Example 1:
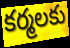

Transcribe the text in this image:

కర్మలకు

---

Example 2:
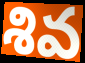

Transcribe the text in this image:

శివ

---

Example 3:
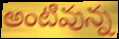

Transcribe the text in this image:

అంటివున్న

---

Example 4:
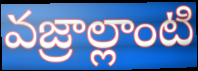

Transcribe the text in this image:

వజ్రాల్లాంటి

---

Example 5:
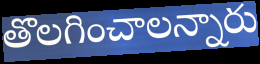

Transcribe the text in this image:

తొలగించాలన్నారు